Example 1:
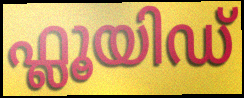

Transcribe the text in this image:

ഫ്ലൂയിഡ്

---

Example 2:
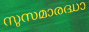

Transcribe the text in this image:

സുസമാരദ്ധാ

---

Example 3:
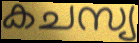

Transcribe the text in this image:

കചസ്യ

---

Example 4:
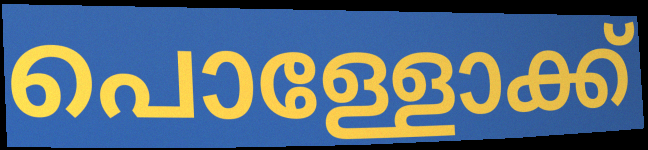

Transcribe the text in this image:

പൊള്ളോക്ക്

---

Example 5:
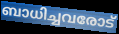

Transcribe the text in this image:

ബാധിച്ചവരോട്